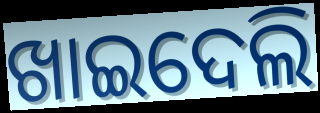
ଖାଇଦେଲି